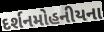
દર્શનમોહનીયના